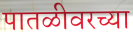
पातळीवरच्या